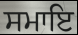
ਸਮਾਇ